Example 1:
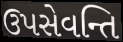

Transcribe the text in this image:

ઉપસેવન્તિ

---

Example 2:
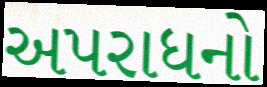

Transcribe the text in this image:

અપરાધનો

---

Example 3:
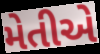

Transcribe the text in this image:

મેતીએ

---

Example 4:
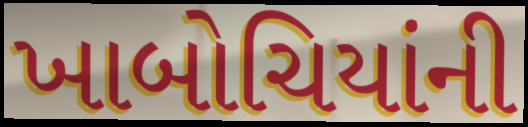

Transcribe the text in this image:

ખાબોચિયાંની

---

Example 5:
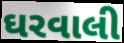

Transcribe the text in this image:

ઘરવાલી